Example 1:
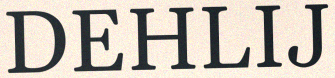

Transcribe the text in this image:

DEHLIJ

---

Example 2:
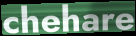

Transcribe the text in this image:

chehare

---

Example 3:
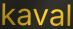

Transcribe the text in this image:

kaval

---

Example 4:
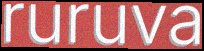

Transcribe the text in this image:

ruruva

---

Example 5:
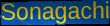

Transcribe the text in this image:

Sonagachi